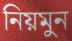
নিয়মুন